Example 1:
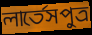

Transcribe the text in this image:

লার্তেসপুত্র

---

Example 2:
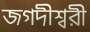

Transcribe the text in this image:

জগদীশ্বরী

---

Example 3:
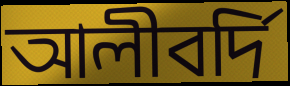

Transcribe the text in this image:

আলীবর্দি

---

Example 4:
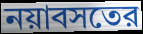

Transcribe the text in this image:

নয়াবসতের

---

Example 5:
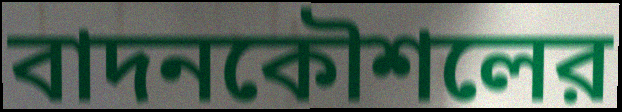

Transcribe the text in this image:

বাদনকৌশলের